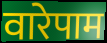
वारेपाम